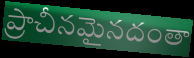
ప్రాచీనమైనదంతా